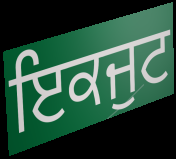
ਇਕਜੁਟ